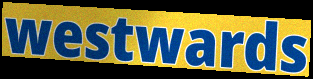
westwards